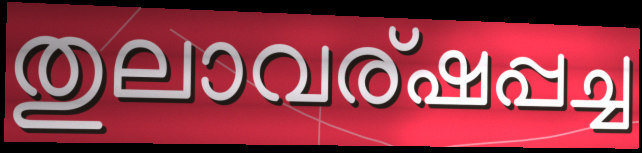
തുലാവര്ഷപ്പച്ച